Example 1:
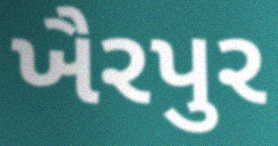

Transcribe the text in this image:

ખૈરપુર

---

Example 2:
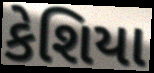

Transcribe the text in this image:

કેશિયા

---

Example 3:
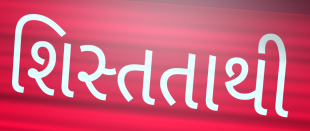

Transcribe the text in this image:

શિસ્તતાથી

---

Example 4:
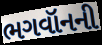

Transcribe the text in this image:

ભગવૉનની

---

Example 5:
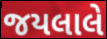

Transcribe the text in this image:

જયલાલે